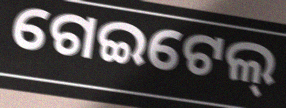
ଗେଇଟେଲ୍